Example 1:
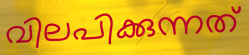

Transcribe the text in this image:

വിലപിക്കുന്നത്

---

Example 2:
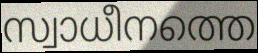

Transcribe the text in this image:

സ്വാധീനത്തെ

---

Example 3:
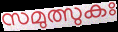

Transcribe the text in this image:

സമുത്സുകഃ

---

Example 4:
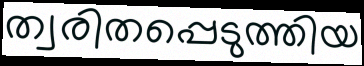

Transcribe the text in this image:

ത്വരിതപ്പെടുത്തിയ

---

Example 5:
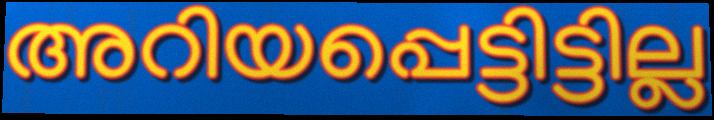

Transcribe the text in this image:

അറിയപ്പെട്ടിട്ടില്ല